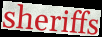
sheriffs